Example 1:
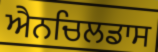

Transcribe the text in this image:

ਐਨਚਿਲਡਾਸ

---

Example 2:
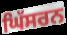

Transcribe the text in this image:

ਘਿੱਸਰਨ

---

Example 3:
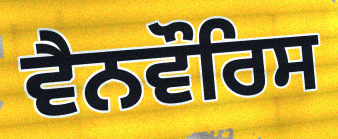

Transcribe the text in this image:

ਵੈਨਵੌਰਿਸ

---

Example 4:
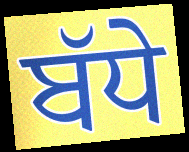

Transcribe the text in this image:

ਬੱਧੇ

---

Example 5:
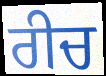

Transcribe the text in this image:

ਰੀਚ